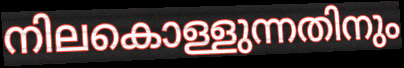
നിലകൊള്ളുന്നതിനും